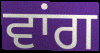
ਵਾਂਗ